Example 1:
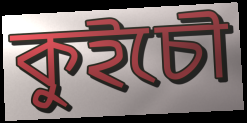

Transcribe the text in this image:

কুইচৌ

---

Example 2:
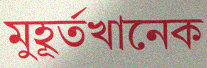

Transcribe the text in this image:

মুহূর্তখানেক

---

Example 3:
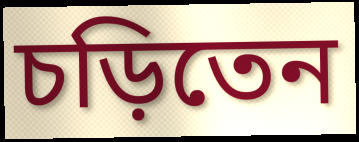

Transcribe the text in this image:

চড়িতেন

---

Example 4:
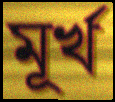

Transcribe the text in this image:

মূর্খ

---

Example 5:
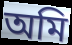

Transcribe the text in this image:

অমি